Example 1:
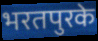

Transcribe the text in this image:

भरतपुरके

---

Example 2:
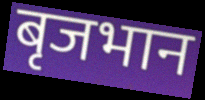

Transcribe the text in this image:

बृजभान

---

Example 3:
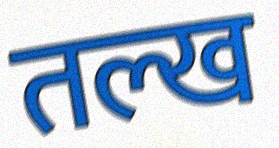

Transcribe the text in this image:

तल्‍ख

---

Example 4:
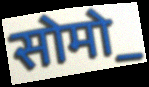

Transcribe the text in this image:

सोमो॒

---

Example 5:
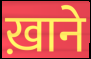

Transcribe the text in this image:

ख़ाने